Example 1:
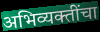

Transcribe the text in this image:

अभिव्यक्तींचा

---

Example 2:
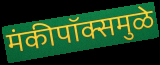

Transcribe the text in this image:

मंकीपॉक्समुळे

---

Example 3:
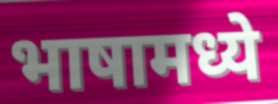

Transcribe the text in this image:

भाषामध्ये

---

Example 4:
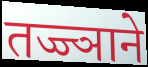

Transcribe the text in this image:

तज्ज्ञाने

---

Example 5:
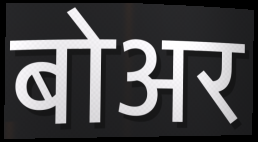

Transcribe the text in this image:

बोअर